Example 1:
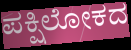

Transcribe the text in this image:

ಪಕ್ಷಿಲೋಕದ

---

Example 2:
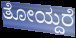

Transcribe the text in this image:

ತೋಯ್ದರೆ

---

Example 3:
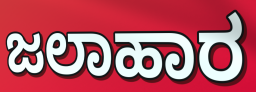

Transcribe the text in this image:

ಜಲಾಹಾರ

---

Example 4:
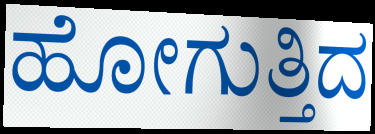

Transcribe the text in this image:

ಹೋಗುತ್ತಿದ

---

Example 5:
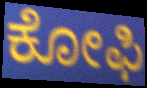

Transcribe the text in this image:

ಕೋಫಿ